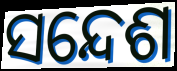
ସନ୍ଦେଶ